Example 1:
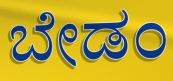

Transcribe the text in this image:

ಬೇಡಂ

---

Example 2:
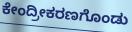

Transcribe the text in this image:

ಕೇಂದ್ರೀಕರಣಗೊಂಡು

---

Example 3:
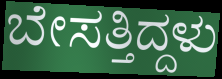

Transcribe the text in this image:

ಬೇಸತ್ತಿದ್ದಳು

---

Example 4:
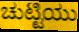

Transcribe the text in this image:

ಚುಟ್ಟಿಯು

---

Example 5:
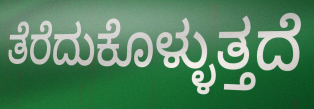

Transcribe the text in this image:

ತೆರೆದುಕೊಳ್ಳುತ್ತದೆ